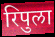
रिपुला